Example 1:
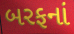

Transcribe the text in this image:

બરફનાં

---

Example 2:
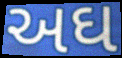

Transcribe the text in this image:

અઘ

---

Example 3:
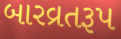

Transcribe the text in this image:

બારવ્રતરૂપ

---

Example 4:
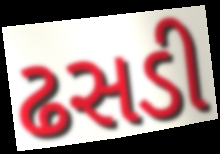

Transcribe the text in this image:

ઢસડી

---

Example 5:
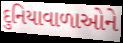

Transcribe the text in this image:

દુનિયાવાળાઓને